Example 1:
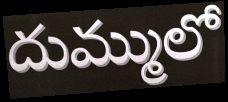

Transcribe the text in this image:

దుమ్ములో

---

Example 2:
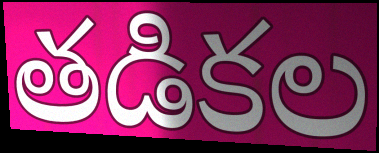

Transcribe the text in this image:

తడికల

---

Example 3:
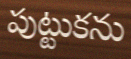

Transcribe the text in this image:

పుట్టుకను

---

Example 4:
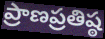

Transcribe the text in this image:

ప్రాణప్రతిష్ఠ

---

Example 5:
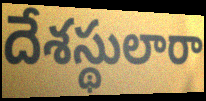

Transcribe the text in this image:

దేశస్థులారా